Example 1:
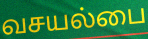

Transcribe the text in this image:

வசயல்பை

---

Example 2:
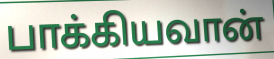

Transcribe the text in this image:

பாக்கியவான்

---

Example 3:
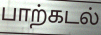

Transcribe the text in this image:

பாற்கடல்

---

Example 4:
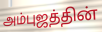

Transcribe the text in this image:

அம்புஜத்தின்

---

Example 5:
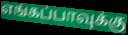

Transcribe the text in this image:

எங்கப்பாவுக்கு